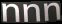
nnn